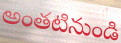
అంతటినుండి